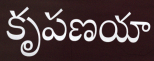
కృపణయా